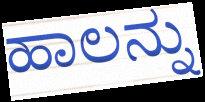
ಹಾಲನ್ನು